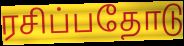
ரசிப்பதோடு